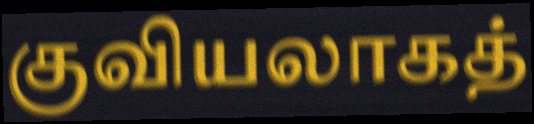
குவியலாகத்